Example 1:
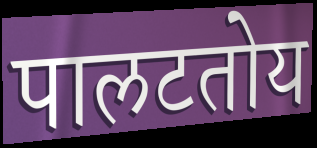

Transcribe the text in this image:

पालटतोय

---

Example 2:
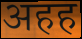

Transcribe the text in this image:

अहह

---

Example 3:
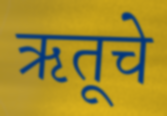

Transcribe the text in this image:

ऋतूचे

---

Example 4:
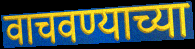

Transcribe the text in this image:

वाचवण्याच्या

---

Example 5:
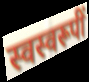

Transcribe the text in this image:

स्वस्वरूपीं